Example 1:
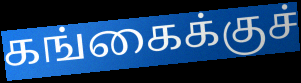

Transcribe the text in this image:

கங்கைக்குச்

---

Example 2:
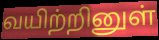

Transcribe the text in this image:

வயிற்றினுள்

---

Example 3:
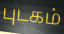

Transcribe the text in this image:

புடகம்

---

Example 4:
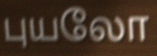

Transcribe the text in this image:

புயலோ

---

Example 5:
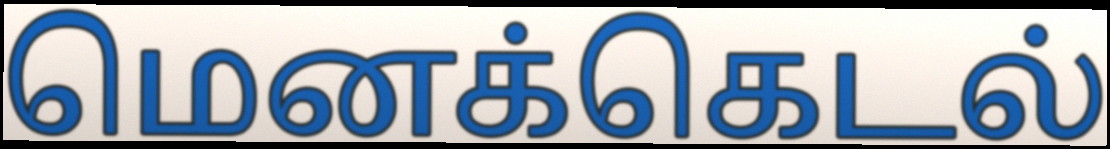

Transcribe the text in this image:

மெனக்கெடல்